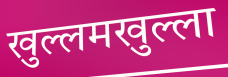
खुल्लमखुल्ला